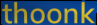
thoonk